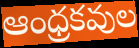
ఆంధ్రకవుల